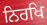
ਨਿਰਖਿ